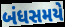
બંધસમયે